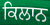
ਕਿਲਾਨ